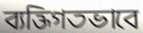
ব্যক্তিগতভাবে